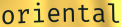
oriental